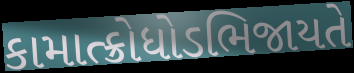
કામાત્ક્રોધોઽભિજાયતે